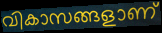
വികാസങ്ങളാണ്